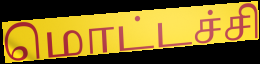
மொட்டச்சி